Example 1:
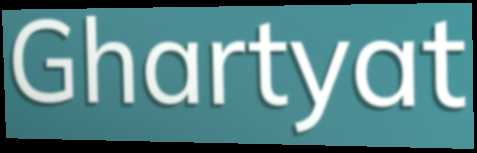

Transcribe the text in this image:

Ghartyat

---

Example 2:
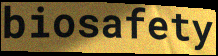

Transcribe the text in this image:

biosafety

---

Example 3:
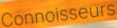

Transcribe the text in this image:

Connoisseurs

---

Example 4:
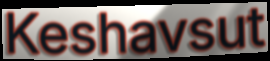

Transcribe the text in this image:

Keshavsut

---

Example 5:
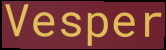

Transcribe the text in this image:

Vesper